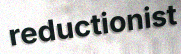
reductionist